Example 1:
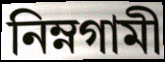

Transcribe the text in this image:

নিম্নগামী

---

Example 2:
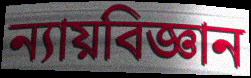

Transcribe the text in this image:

ন্যায়বিজ্ঞান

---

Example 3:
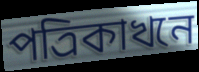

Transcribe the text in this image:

পত্ৰিকাখনে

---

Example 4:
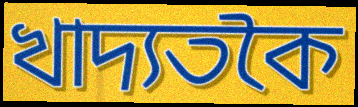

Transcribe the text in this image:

খাদ্যতকৈ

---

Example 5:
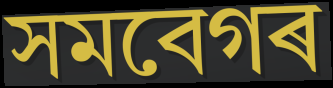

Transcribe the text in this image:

সমবেগৰ